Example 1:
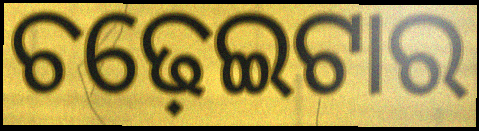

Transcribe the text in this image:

ଚଢ଼େଇଟାର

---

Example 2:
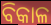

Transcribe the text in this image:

ବିକାଳ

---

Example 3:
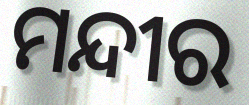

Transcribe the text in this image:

ମନ୍ଦୀର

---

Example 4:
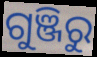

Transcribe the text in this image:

ଗୁଞ୍ଜିରୁ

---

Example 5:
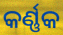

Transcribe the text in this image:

କର୍ଣ୍ଣକ